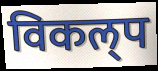
विकल्प